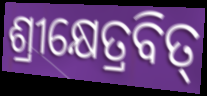
ଶ୍ରୀକ୍ଷେତ୍ରବିତ୍